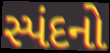
સ્પંદનો